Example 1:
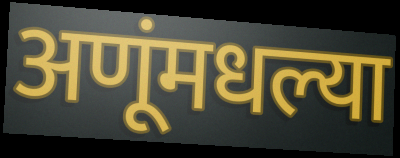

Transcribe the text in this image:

अणूंमधल्या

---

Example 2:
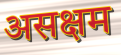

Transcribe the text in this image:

असक्षम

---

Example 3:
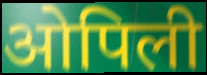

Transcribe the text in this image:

ओपिली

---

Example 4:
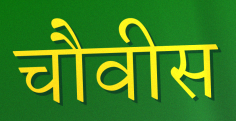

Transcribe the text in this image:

चौवीस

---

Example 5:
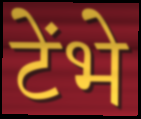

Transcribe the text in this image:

टेंभे